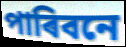
পাৰিবনে